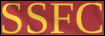
SSFC